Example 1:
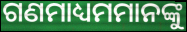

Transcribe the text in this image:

ଗଣମାଧ୍ୟମମାନଙ୍କୁ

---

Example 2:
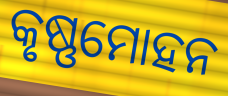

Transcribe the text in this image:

କୃଷ୍ଣମୋହନ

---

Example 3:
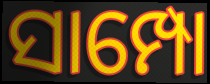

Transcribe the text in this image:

ସାମ୍ପୋ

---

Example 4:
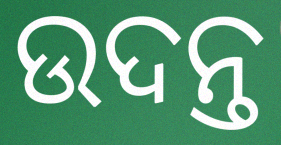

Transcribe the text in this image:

ଉଦନ୍ତ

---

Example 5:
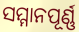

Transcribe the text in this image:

ସମ୍ମାନପୂର୍ଣ୍ଣ